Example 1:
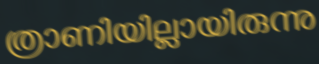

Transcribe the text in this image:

ത്രാണിയില്ലായിരുന്നു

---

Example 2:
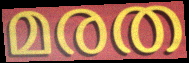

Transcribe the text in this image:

മരത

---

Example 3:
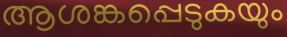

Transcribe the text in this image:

ആശങ്കപ്പെടുകയും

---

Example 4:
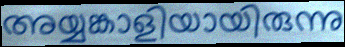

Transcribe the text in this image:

അയ്യങ്കാളിയായിരുന്നു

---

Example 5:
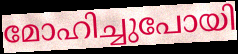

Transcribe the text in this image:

മോഹിച്ചുപോയി